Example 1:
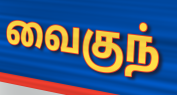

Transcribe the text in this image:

வைகுந்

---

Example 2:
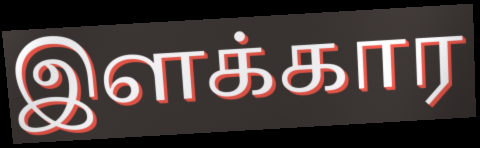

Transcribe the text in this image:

இளக்கார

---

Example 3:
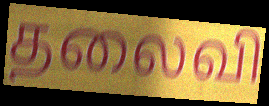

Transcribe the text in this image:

தலைவி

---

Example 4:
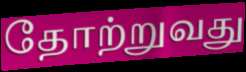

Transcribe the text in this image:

தோற்றுவது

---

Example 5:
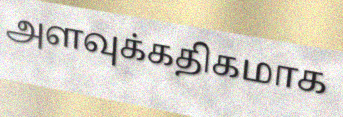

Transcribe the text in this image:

அளவுக்கதிகமாக